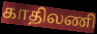
காதிலணி